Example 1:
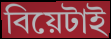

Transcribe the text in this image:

বিয়েটাই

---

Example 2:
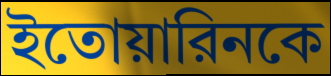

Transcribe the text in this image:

ইতোয়ারিনকে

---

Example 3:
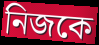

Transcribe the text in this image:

নিজকে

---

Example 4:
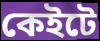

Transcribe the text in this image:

কেইটে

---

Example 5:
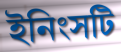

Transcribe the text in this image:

ইনিংসটি